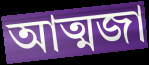
আত্মজা